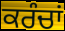
ਕਰੰਚਾਂ